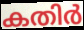
കതിർ